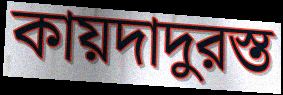
কায়দাদুরস্ত